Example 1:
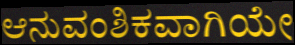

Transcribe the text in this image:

ಆನುವಂಶಿಕವಾಗಿಯೇ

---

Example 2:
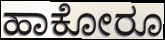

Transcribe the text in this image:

ಹಾಕೋರೂ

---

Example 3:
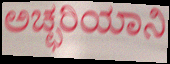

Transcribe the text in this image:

ಅಚ್ಛರಿಯಾನಿ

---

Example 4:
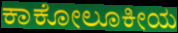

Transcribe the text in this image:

ಕಾಕೋಲೂಕೀಯ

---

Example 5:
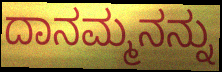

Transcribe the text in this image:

ದಾನಮ್ಮನನ್ನು